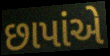
છાપાંએ